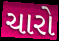
ચારો